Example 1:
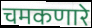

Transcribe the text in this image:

चमकणारे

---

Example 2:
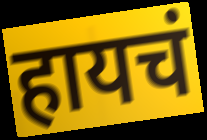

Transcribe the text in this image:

हायचं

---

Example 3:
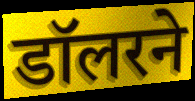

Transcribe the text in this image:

डॉलरने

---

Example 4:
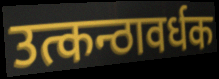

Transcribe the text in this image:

उत्कन्ठावर्धक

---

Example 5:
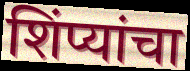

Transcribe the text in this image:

शिंप्यांचा